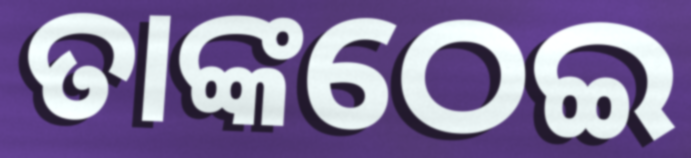
ତାଙ୍କଠେଇ